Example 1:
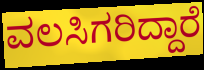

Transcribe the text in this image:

ವಲಸಿಗರಿದ್ದಾರೆ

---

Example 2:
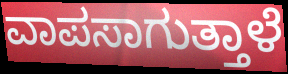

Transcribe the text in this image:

ವಾಪಸಾಗುತ್ತಾಳೆ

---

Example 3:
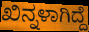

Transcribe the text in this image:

ಖಿನ್ನಳಾಗಿದ್ದೆ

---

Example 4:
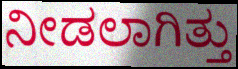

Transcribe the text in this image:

ನೀಡಲಾಗಿತ್ತು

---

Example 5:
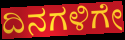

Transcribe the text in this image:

ದಿನಗಳಿಗೇ